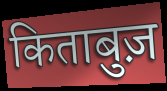
किताबुज़